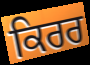
ਕਿਰਰ